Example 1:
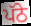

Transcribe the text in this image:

ਪੱਠੇ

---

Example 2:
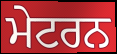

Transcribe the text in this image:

ਮੇਟਰਨ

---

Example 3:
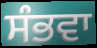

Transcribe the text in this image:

ਸੰਭਵਾ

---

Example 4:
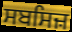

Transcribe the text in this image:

ਸਬਸਿਜ਼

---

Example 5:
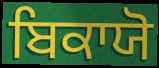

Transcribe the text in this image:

ਬਿਕਾਯੋ